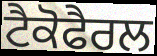
ਟੈਕੋਫੈਰਲ